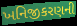
ખનિજીકરણની